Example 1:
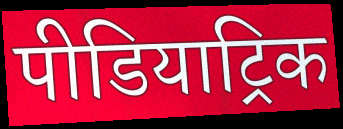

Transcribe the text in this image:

पीडियाट्रिक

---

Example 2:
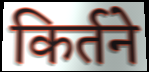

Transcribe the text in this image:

किर्तने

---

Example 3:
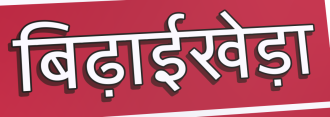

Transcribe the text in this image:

बिढ़ाईखेड़ा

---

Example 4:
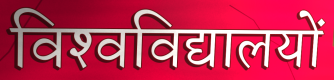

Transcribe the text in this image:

विश्‍वविद्यालयों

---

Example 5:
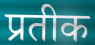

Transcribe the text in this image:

प्रतीक